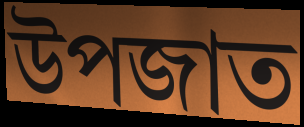
উপজাত